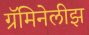
ग्रॅमिनेलीझ